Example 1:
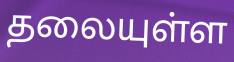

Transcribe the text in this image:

தலையுள்ள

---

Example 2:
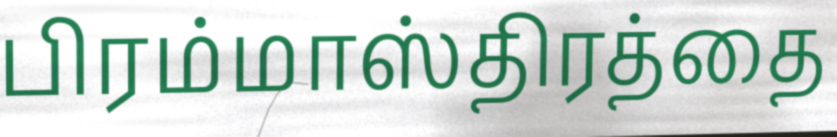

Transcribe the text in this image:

பிரம்மாஸ்திரத்தை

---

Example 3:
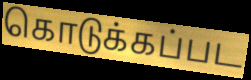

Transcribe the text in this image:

கொடுக்கப்பட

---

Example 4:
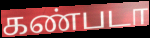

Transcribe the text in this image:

கண்படா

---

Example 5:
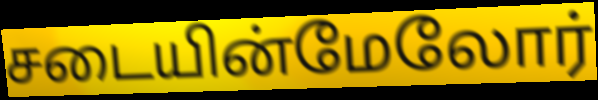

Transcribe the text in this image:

சடையின்மேலோர்